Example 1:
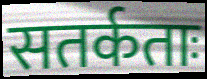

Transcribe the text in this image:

सतर्कताः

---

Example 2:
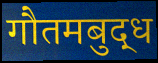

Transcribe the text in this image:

गौतमबुद्ध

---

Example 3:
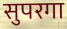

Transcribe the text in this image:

सुपरगा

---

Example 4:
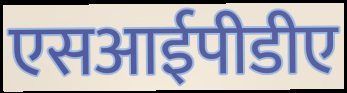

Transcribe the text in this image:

एसआईपीडीए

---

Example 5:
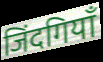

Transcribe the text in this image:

जिंदगियाँ